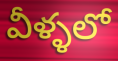
వీళ్ళలో